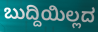
ಬುದ್ದಿಯಿಲ್ಲದ